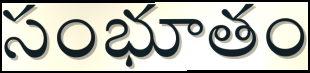
సంభూతం